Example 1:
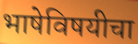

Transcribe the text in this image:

भाषेविषयीचा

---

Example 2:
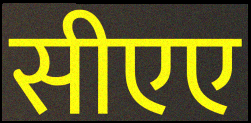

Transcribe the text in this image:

सीएए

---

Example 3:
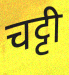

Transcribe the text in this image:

चट्टी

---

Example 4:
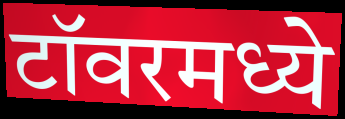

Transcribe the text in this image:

टॉवरमध्ये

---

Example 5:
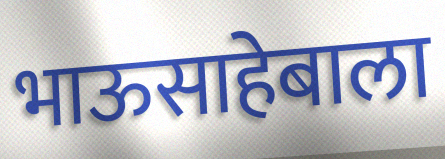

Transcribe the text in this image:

भाऊसाहेबाला